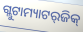
ଗ୍ଲୁଟାମ୍ୟାଟର୍‌ଜିକ୍